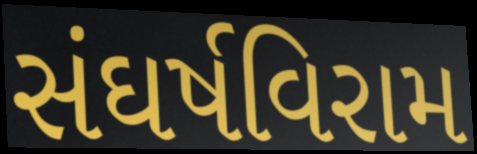
સંઘર્ષવિરામ